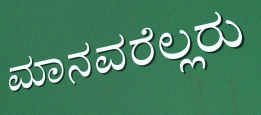
ಮಾನವರೆಲ್ಲರು